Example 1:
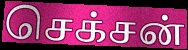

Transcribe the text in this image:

செக்சன்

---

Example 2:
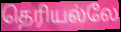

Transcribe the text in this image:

தெரியல்லே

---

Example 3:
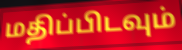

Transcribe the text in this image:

மதிப்பிடவும்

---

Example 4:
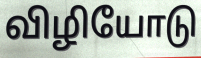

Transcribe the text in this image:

விழியோடு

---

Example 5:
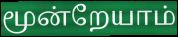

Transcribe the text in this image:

மூன்றேயாம்